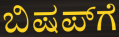
ಬಿಷಪ್‌ಗೆ